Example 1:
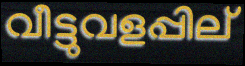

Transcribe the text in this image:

വീട്ടുവളപ്പില്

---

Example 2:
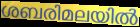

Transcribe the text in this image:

ശബരിമലയിൽ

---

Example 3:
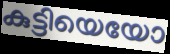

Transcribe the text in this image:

കുട്ടിയെയോ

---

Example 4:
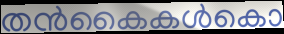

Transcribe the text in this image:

തൻകൈകൾകൊ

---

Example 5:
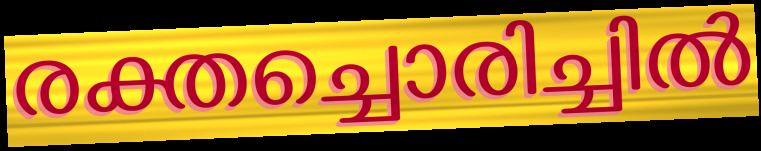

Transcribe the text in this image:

രക്തച്ചൊരിച്ചിൽ